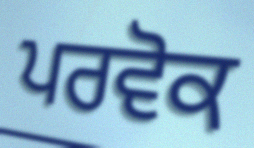
ਪਰਵੋਕ